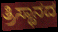
ತ್ರಿಸ್ಥಾನದ